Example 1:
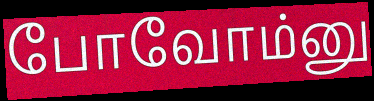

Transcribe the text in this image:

போவோம்னு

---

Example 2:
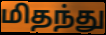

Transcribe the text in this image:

மிதந்து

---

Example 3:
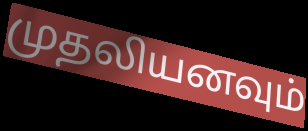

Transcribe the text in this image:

முதலியனவும்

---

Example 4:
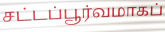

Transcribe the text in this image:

சட்டப்பூர்வமாகப்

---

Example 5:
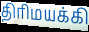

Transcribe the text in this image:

திரிமயக்கி